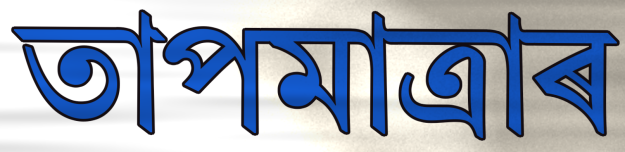
তাপমাত্ৰাৰ